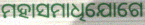
ମହାସମାଧିଯୋଗେ